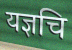
यज्ञचि